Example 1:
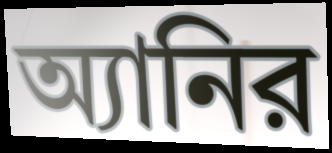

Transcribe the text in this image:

অ্যানির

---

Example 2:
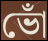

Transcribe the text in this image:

ভোঁ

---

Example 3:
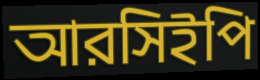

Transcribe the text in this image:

আরসিইপি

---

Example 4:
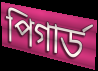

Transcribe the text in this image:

পিগার্ড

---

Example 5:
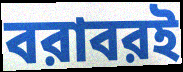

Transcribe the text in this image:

বরাবরই